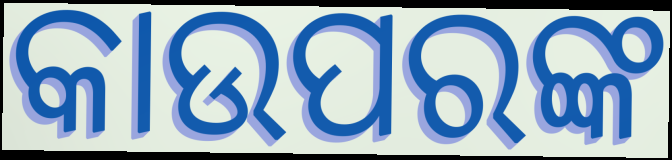
କାଉପରଙ୍କ